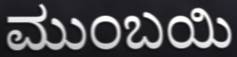
ಮುಂಬಯಿ